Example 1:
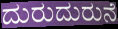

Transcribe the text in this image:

ದುರುದುರುನೆ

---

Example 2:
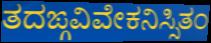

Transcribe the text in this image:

ತದಙ್ಗವಿವೇಕನಿಸ್ಸಿತಂ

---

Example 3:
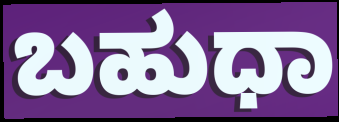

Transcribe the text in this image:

ಬಹುಧಾ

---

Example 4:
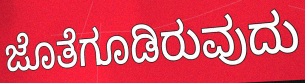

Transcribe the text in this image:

ಜೊತೆಗೂಡಿರುವುದು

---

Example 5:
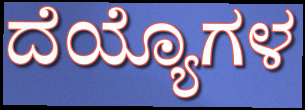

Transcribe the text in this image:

ದೆಯ್ಯೊಗಳ